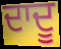
ਦਾਦੂ